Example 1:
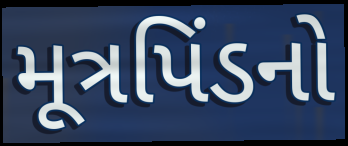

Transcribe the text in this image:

મૂત્રપિંડનો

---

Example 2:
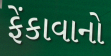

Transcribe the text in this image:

ફેંકાવાનો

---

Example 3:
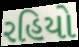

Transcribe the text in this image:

રહિયો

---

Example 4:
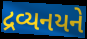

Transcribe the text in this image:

દ્રવ્યનયને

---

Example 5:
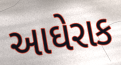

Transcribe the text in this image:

આઘેરાક